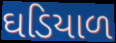
ઘડિયાળ